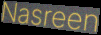
Nasreen